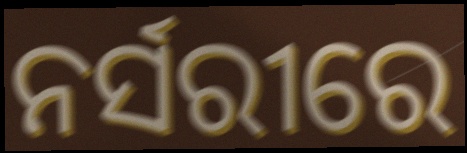
ନର୍ସରୀରେ